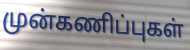
முன்கணிப்புகள்